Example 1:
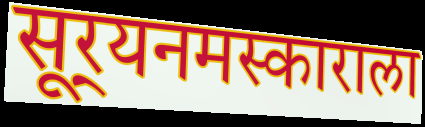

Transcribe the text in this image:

सूर्यनमस्काराला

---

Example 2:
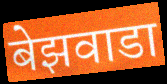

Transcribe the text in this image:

बेझवाडा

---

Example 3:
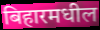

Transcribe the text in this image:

बिहारमधील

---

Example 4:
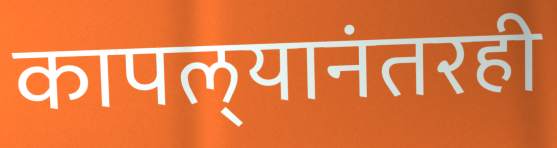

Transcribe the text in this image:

कापल्यानंतरही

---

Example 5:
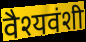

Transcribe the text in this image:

वैश्यवंशी